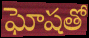
ఘోషతో